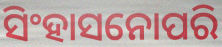
ସିଂହାସନୋପରି